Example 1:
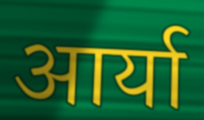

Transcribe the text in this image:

आर्या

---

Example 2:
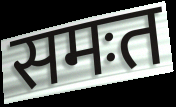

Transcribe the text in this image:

समःत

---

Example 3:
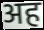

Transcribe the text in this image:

अह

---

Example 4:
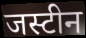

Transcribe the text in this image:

जस्टीन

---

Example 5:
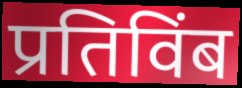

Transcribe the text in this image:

प्रतिविंब